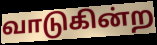
வாடுகின்ற